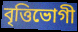
বৃত্তিভোগী